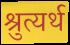
श्रुत्यर्थ